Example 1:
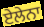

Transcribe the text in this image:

ਏਲੇਨਾ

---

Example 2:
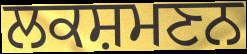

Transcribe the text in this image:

ਲਕਸ਼ਮਣਨ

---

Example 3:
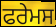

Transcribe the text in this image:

ਫਰੇਮਸ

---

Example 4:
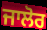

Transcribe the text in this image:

ਜਾਲੋਰ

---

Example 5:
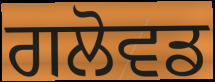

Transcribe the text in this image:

ਗਲੋਵਡ